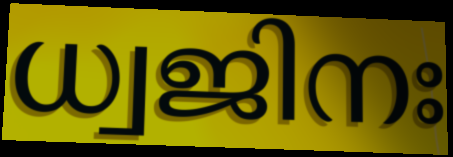
ധ്വജിനഃ